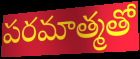
పరమాత్మతో